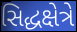
સિદ્ધક્ષેત્રે